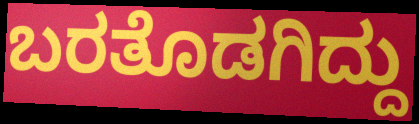
ಬರತೊಡಗಿದ್ದು